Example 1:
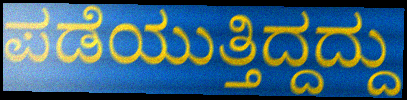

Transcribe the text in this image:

ಪಡೆಯುತ್ತಿದ್ದದ್ದು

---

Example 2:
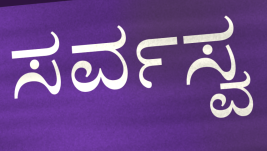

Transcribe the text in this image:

ಸರ್ವಸ್ವ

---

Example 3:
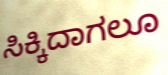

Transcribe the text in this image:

ಸಿಕ್ಕಿದಾಗಲೂ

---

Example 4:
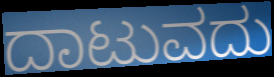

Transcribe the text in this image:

ದಾಟುವದು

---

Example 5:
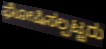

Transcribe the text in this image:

ಘೋಷಿಸಲ್ಪಟ್ಟರು